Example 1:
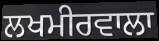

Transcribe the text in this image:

ਲਖਮੀਰਵਾਲਾ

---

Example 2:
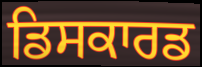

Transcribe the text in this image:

ਡਿਸਕਾਰਡ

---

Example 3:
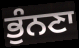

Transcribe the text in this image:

ਭੁੰਨਣਾ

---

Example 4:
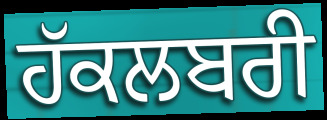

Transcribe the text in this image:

ਹੱਕਲਬਰੀ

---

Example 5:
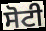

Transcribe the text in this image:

ਸੋਟੀ